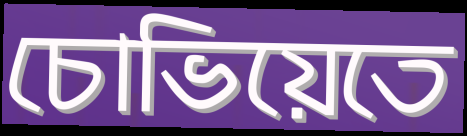
চোভিয়েতে